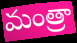
మంత్రా